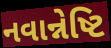
નવાન્નેષ્ટિ